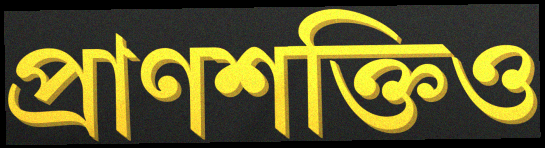
প্রাণশক্তিও